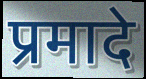
प्रमादे